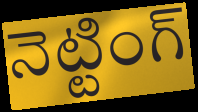
నెట్టింగ్